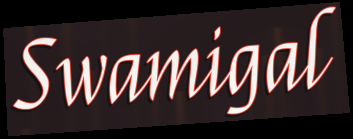
Swamigal